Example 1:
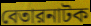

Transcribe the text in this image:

বেতারনাটক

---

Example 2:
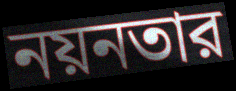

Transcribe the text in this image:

নয়নতার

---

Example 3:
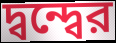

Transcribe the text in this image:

দ্বন্দ্বের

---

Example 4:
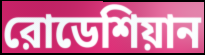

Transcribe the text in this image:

রোডেশিয়ান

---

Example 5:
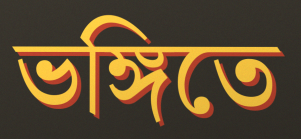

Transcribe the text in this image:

ভঙ্গিতে